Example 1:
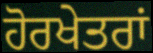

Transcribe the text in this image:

ਹੋਰਖੇਤਰਾਂ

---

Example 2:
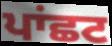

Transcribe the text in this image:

ਪਾਂਛਟ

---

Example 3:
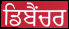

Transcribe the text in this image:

ਡਿਬੈਂਚਰ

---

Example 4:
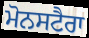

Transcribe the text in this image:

ਮੋਨਸਟੈਰਾ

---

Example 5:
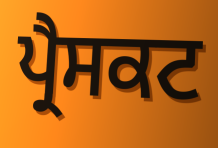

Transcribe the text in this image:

ਪ੍ਰੈਸਕਟ